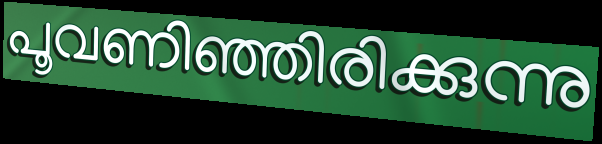
പൂവണിഞ്ഞിരിക്കുന്നു